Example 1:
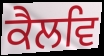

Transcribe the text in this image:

ਕੈਲਵਿ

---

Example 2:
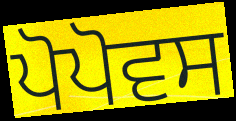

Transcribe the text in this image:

ਪੋਪੋਵਸ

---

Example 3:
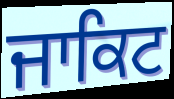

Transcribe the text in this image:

ਜਾਕਿਟ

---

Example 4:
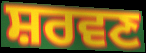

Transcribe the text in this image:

ਸ਼ਰਵਣ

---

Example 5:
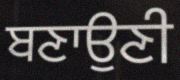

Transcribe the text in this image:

ਬਣਾਉਣੀ